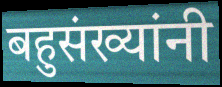
बहुसंख्यांनी